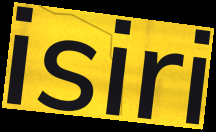
isiri